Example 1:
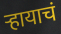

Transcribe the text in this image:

ऱ्हायाचं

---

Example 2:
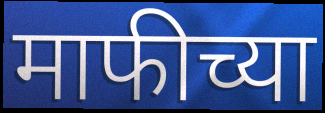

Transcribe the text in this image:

माफीच्या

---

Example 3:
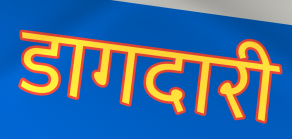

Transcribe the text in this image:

डागदारी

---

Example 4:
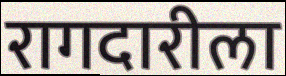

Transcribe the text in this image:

रागदारीला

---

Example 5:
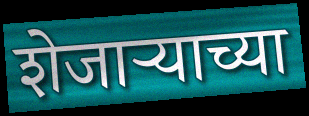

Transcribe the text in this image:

शेजार्‍याच्या